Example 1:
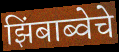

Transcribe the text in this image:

झिंबाब्वेचे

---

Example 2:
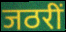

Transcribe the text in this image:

जठरीं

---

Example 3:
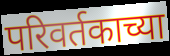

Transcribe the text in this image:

परिवर्तकाच्या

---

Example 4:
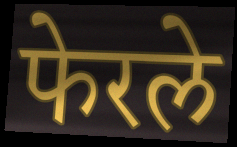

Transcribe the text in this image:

फेरले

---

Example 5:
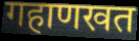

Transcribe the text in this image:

गहाणखत